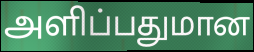
அளிப்பதுமான